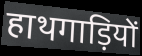
हाथगाड़ियों